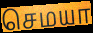
செமயா